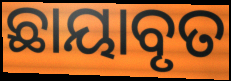
ଛାୟାବୃତ